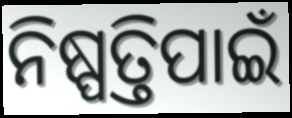
ନିଷ୍ପତ୍ତିପାଇଁ